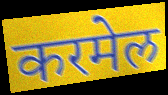
करमेल